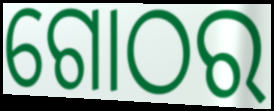
ଗୋଠର